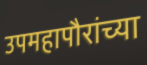
उपमहापौरांच्या